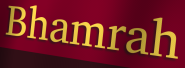
Bhamrah